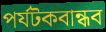
পর্যটকবান্ধব